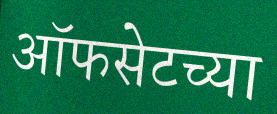
ऑफसेटच्या